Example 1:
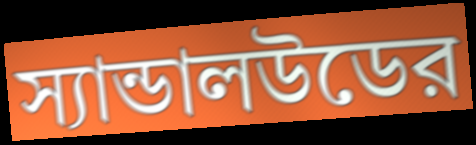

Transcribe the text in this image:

স্যান্ডালউডের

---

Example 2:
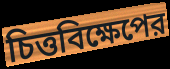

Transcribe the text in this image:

চিত্তবিক্ষেপের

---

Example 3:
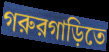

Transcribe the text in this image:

গরুরগাড়িতে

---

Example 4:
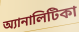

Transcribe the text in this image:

অ্যানালিটিকা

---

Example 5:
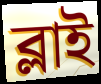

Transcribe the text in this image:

ব্লাই